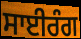
ਸਾਈਰੰਗ